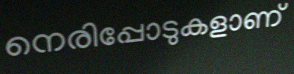
നെരിപ്പോടുകളാണ്